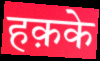
हक़के